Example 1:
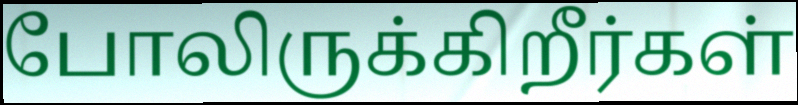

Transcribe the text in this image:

போலிருக்கிறீர்கள்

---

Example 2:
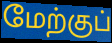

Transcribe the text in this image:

மேற்குப்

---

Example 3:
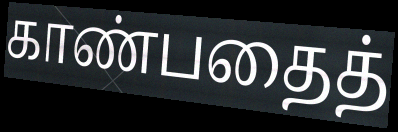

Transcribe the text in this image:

காண்பதைத்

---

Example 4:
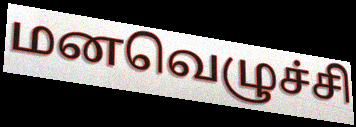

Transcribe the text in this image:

மனவெழுச்சி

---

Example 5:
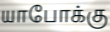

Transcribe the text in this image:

யாபோக்கு